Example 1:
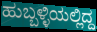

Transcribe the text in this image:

ಹುಬ್ಬಳ್ಳಿಯಲ್ಲಿದ್ದ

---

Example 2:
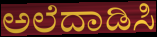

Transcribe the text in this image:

ಅಲೆದಾಡಿಸಿ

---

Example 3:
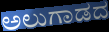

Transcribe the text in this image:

ಅಲುಗಾಡದ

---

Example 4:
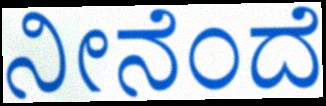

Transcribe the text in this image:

ನೀನೆಂದೆ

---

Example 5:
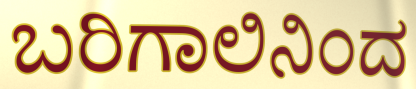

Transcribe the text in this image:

ಬರಿಗಾಲಿನಿಂದ